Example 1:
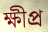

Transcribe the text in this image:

ক্ষীপ্ৰ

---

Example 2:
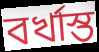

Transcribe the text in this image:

বৰ্খাস্ত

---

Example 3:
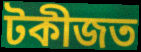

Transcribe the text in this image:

টকীজত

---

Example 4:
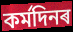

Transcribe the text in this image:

কৰ্মদিনৰ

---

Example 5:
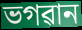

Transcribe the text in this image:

ভগৱান